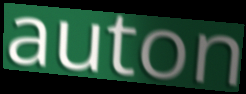
auton